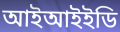
আইআইইডি